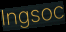
Ingsoc